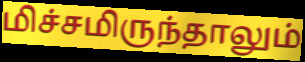
மிச்சமிருந்தாலும்